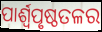
ପାର୍ଶ୍ଵପୃଷ୍ଠତଳର